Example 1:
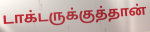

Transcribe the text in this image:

டாக்டருக்குத்தான்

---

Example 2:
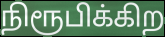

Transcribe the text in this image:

நிரூபிக்கிற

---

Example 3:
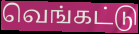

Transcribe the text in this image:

வெங்கட்டு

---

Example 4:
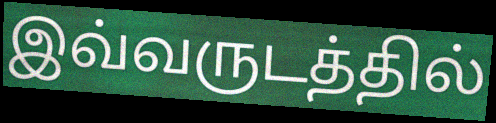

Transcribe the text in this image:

இவ்வருடத்தில்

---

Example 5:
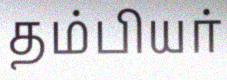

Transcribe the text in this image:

தம்பியர்